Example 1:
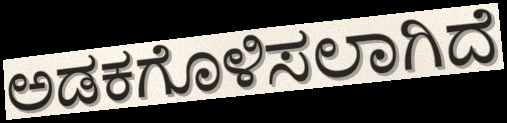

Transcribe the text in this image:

ಅಡಕಗೊಳಿಸಲಾಗಿದೆ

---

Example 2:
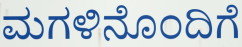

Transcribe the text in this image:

ಮಗಳಿನೊಂದಿಗೆ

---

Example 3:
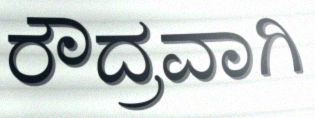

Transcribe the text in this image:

ರೌದ್ರವಾಗಿ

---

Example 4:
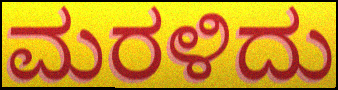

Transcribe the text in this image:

ಮರಳಿದು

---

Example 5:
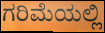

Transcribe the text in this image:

ಗರಿಮೆಯಲ್ಲಿ